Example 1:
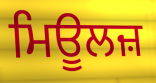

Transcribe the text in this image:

ਮਿਊਲਜ਼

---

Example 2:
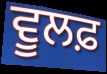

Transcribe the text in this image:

ਵੂਲਫ਼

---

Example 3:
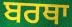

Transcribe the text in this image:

ਬਰਥਾ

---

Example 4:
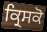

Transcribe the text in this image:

ਕ੍ਰਿਸਕੋ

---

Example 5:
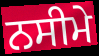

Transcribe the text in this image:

ਨਸੀਮੇ